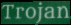
Trojan